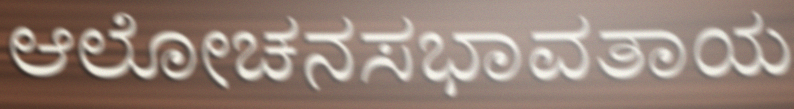
ಆಲೋಚನಸಭಾವತಾಯ